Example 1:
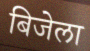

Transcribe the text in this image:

बिजेला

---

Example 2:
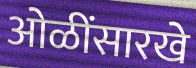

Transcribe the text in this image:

ओळींसारखे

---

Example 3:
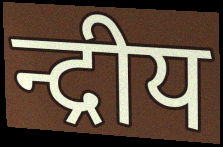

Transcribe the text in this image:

न्द्रीय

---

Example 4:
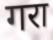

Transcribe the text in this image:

गरा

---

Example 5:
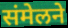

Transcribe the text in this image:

संमेलने